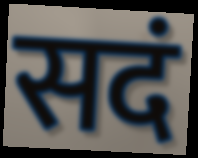
सदं